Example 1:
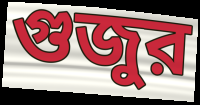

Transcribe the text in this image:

গুজুর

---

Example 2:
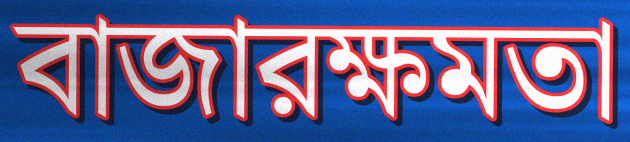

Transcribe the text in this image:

বাজারক্ষমতা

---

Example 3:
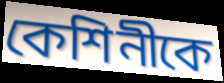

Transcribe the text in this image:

কেশিনীকে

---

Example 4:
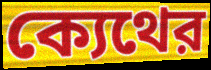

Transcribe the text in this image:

ক্যেথের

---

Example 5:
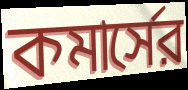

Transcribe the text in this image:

কমার্সের